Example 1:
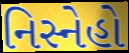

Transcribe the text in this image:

નિસ્નેહો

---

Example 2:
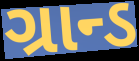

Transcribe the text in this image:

ગ્રાન્ડ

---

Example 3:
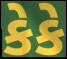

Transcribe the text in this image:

કેકે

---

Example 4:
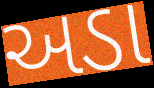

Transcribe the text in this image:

અડા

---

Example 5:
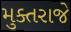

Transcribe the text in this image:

મુક્તરાજે